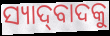
ସ୍ୟାଦ୍‌ବାଦକୁ